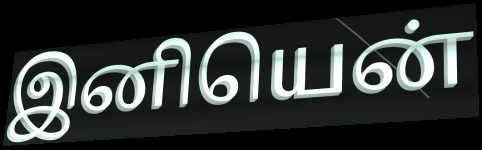
இனியென்